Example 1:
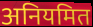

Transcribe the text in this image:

अनियमित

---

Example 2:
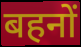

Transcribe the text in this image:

बहनों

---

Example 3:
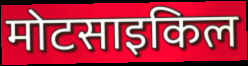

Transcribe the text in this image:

मोटसाइकिल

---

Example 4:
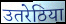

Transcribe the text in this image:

उतरेठिया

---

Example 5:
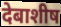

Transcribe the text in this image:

देबाशीष